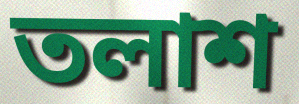
তলাশ